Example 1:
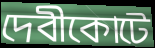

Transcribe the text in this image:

দেবীকোটে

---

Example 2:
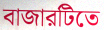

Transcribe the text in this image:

বাজারটিতে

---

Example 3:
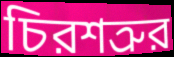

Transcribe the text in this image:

চিরশত্রুর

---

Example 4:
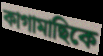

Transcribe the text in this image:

কাগামাছিকে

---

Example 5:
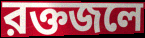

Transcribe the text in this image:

রক্তজলে